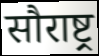
सौराष्ट्र